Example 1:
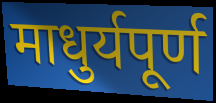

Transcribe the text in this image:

माधुर्यपूर्ण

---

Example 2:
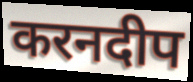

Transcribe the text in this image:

करनदीप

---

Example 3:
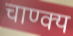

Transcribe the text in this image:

चाण्क्य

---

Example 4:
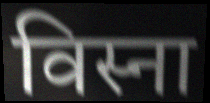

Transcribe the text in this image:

विस्ना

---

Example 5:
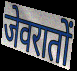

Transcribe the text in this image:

जेवरातों